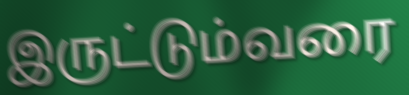
இருட்டும்வரை